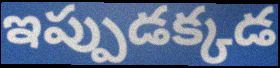
ఇప్పుడక్కడ